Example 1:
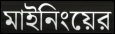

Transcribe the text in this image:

মাইনিংয়ের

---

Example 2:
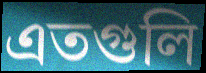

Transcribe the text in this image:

এতগুলি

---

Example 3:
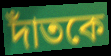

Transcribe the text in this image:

দাঁতকে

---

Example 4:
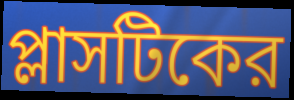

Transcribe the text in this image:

প্লাসটিকের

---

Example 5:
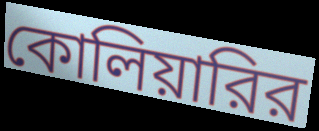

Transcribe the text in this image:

কোলিয়ারির